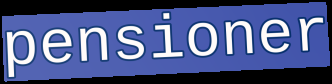
pensioner